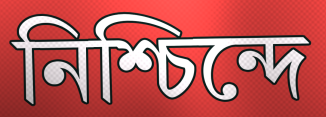
নিশ্চিন্দে